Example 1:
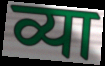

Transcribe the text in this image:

व्या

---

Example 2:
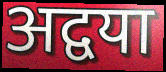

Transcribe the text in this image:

अद्वया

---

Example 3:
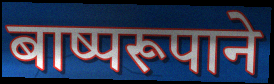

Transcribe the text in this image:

बाष्परूपाने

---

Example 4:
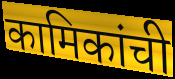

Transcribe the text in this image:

कामिकांची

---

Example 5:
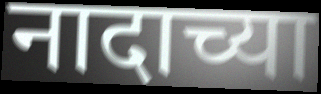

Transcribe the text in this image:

नादाच्या